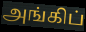
அங்கிப்